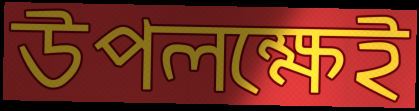
উপলক্ষেই